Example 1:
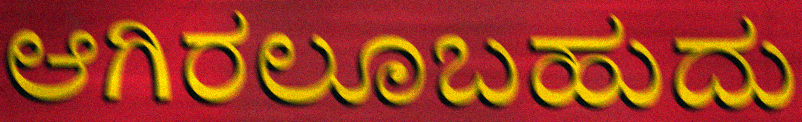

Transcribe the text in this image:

ಆಗಿರಲೂಬಹುದು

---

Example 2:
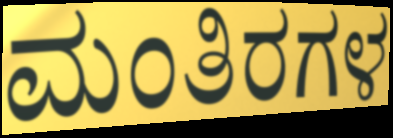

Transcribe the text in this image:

ಮಂತಿರಗಳ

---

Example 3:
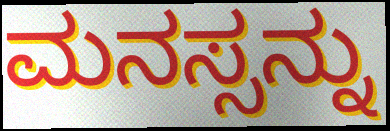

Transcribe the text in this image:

ಮನಸ್ಸನ್ನು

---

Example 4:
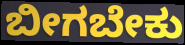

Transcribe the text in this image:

ಬೀಗಬೇಕು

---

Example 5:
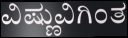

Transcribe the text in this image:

ವಿಷ್ಣುವಿಗಿಂತ